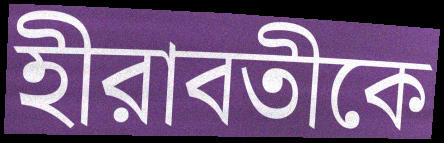
হীরাবতীকে